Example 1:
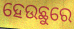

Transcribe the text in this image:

ହେଉଛୁରେ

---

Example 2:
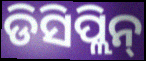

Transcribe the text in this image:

ଡିସିପ୍ଲିନ୍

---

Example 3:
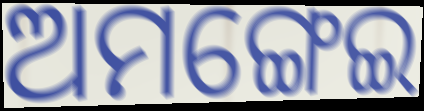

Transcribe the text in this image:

ଅମଙ୍ଗେଇ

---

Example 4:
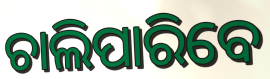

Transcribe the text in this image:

ଚାଲିପାରିବେ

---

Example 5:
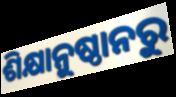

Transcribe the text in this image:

ଶିକ୍ଷାନୁଷ୍ଠାନରୁ